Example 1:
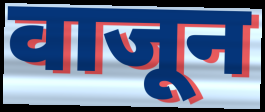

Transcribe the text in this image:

वाजून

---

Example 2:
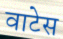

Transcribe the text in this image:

वाटेस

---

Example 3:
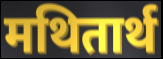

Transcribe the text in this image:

मथितार्थ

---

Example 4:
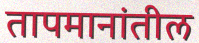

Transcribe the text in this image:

तापमानांतील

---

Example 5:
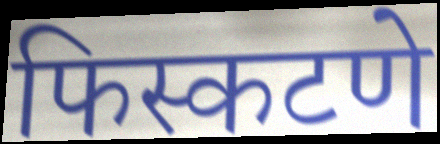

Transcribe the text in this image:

फिस्कटणे